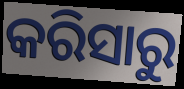
କରିସାରୁ